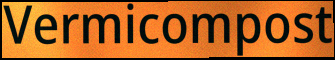
Vermicompost